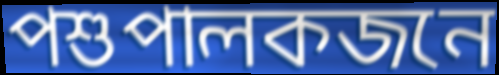
পশুপালকজনে